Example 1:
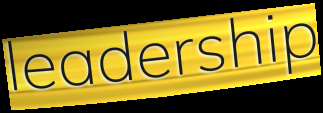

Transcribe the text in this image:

leadership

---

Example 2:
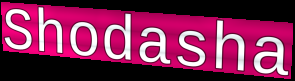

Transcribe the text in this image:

Shodasha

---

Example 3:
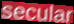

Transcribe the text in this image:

secular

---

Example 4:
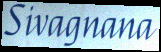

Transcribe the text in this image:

Sivagnana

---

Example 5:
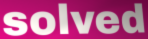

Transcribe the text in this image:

solved